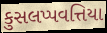
કુસલપ્પવત્તિયા